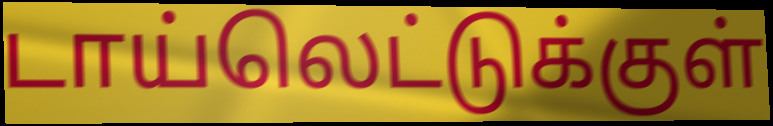
டாய்லெட்டுக்குள்